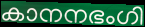
കാനനഭംഗി